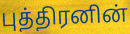
புத்திரனின்